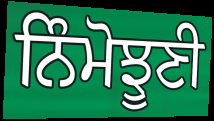
ਨਿੰਮੋਝੂਣੀ